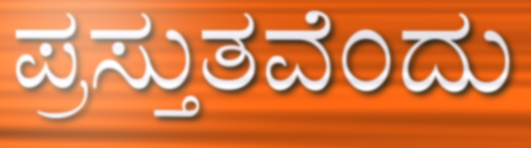
ಪ್ರಸ್ತುತವೆಂದು